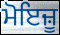
ਮੋਇਜ਼ੂ